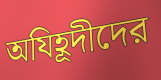
অযিহূদীদের